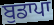
ਬੁਡਾਪਾ